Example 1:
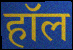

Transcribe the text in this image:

हॉल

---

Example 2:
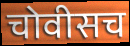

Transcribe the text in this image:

चोवीसच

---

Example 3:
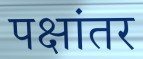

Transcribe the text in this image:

पक्षांतर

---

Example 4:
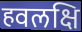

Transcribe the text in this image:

हवलक्षि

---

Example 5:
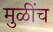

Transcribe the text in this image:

मुळींच